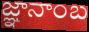
జ్ఞానాంబ